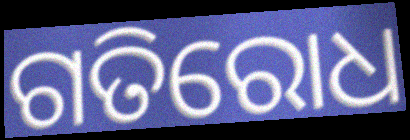
ଗତିରୋଧ